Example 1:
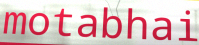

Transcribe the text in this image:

motabhai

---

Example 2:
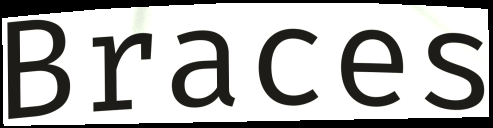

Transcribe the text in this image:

Braces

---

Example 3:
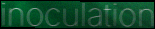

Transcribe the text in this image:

inoculation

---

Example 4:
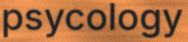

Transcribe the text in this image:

psycology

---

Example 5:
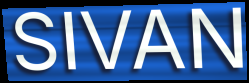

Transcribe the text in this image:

SIVAN